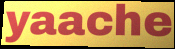
yaache